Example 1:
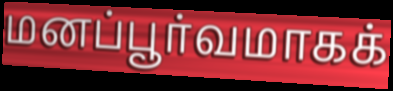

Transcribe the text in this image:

மனப்பூர்வமாகக்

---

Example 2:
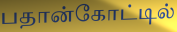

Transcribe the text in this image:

பதான்கோட்டில்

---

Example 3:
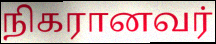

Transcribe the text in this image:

நிகரானவர்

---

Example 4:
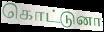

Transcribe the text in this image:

கொட்டுனா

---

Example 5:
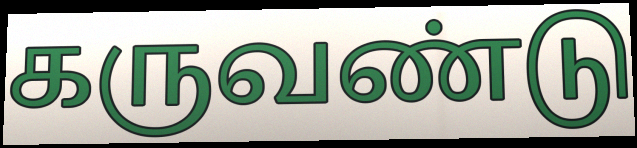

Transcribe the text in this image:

கருவண்டு